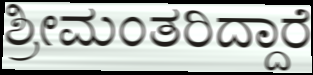
ಶ್ರೀಮಂತರಿದ್ದಾರೆ